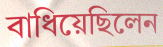
বাধিয়েছিলেন